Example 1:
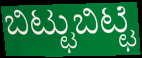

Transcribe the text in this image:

ಬಿಟ್ಟುಬಿಟ್ಟೆ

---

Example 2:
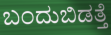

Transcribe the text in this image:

ಬಂದುಬಿಡತ್ತೆ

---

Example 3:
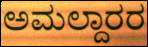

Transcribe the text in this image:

ಅಮಲ್ದಾರರ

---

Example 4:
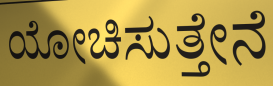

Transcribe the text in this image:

ಯೋಚಿಸುತ್ತೇನೆ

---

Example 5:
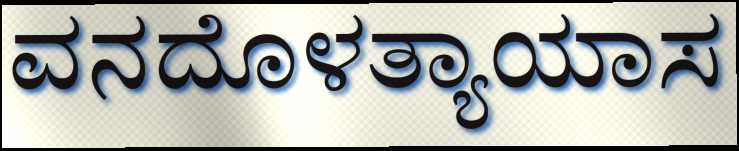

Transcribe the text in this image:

ವನದೊಳತ್ಯಾಯಾಸ